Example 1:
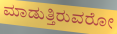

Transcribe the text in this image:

ಮಾಡುತ್ತಿರುವರೋ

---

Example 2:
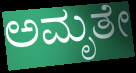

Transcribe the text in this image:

ಅಮೃತೇ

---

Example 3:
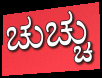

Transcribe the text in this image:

ಚುಚ್ಚು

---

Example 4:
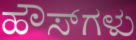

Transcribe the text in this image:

ಹೌಸ್‌ಗಳು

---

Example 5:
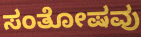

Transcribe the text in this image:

ಸಂತೋಷವು